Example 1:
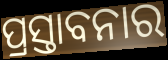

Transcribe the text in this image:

ପ୍ରସ୍ତାବନାର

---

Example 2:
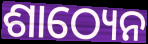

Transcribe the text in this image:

ଶାଠ୍ୟେନ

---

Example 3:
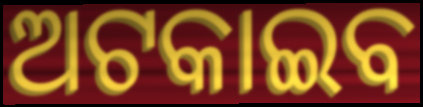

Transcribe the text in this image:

ଅଟକାଇବ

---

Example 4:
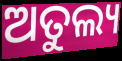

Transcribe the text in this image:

ଅତୁଲ୍ୟ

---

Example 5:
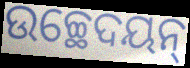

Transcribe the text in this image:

ଉଚ୍ଛେଦୟନ୍